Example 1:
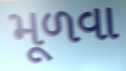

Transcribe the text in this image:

મૂળવા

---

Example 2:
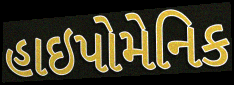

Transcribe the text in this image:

હાઇપોમેનિક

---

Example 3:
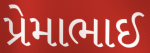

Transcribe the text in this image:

પ્રેમાભાઈ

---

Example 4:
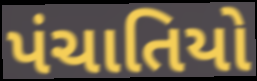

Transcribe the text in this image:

પંચાતિયો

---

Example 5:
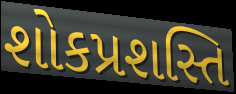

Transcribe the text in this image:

શોકપ્રશસ્તિ